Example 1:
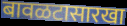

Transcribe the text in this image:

बावळटासारखा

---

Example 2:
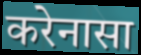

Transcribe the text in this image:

करेनासा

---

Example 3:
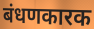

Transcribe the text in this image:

बंधणकारक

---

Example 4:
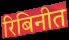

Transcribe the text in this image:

रिबिनीत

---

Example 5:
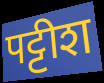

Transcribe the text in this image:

पट्टीश